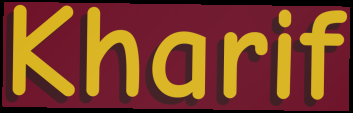
Kharif